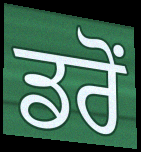
ਡਰੋਂ